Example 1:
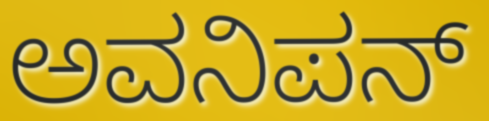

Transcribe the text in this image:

ಅವನಿಪನ್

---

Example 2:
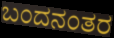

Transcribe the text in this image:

ಬಂದನಂತರ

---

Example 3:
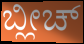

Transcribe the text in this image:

ಬ್ಲೀಚ್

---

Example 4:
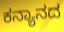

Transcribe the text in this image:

ಕನ್ಯಾನದ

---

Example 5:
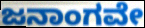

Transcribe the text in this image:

ಜನಾಂಗವೇ